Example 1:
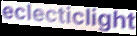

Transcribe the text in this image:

eclecticlight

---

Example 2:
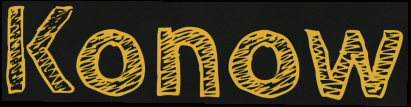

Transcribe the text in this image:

Konow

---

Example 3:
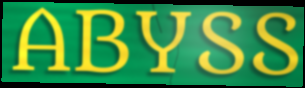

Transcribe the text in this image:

ABYSS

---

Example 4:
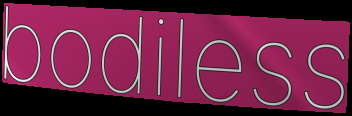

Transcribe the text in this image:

bodiless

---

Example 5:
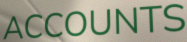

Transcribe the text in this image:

ACCOUNTS